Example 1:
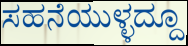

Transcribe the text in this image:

ಸಹನೆಯುಳ್ಳದ್ದೂ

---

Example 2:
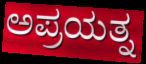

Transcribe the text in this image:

ಅಪ್ರಯತ್ನ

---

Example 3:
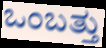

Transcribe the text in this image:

ಒಂಬತ್ತು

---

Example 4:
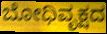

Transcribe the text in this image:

ಬೋಧಿವೃಕ್ಷದ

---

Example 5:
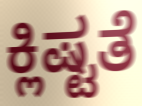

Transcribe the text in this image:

ಕ್ಲಿಷ್ಟತೆ